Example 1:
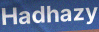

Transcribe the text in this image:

Hadhazy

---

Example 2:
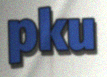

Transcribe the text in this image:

pku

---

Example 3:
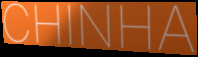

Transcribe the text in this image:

CHINHA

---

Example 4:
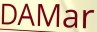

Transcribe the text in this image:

DAMar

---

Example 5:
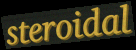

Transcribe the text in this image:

steroidal